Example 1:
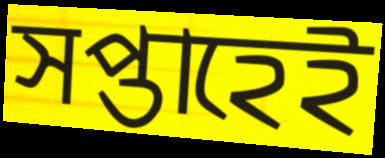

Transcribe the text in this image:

সপ্তাহেই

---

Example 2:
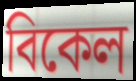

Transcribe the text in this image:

বিকেল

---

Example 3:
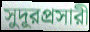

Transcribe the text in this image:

সুদূরপ্রসারী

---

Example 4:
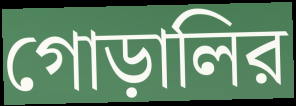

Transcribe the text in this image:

গোড়ালির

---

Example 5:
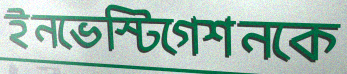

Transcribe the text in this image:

ইনভেস্টিগেশনকে